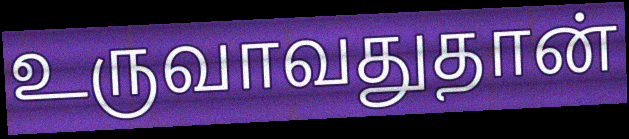
உருவாவதுதான்